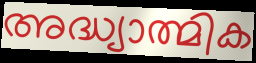
അദ്ധ്യാത്മിക